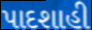
પાદશાહી